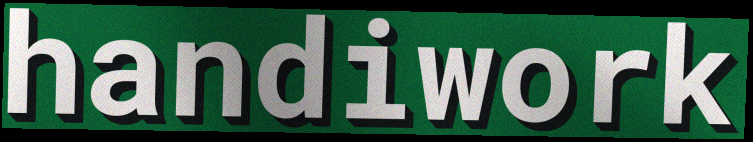
handiwork